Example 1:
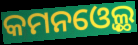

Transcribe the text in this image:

କମନଓ୍ବେଲ୍ଥ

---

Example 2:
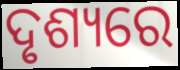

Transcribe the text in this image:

ଦୃଶ୍ୟରେ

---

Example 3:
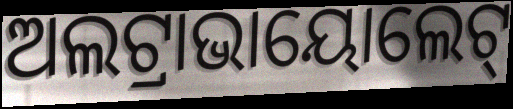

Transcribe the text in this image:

ଅଲଟ୍ରାଭାୟୋଲେଟ୍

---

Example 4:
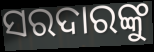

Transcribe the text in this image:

ସରଦାରଙ୍କୁ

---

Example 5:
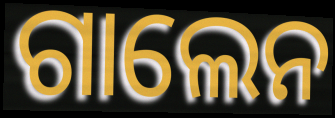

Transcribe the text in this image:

ଗାଲେନ